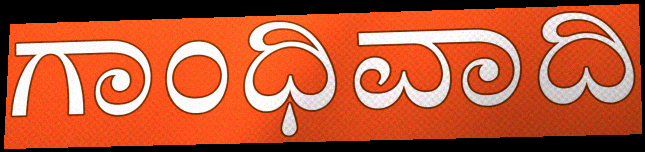
ಗಾಂಧಿವಾದಿ